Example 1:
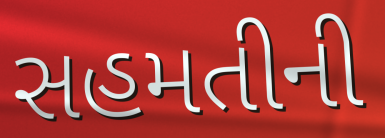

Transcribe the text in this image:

સહમતીની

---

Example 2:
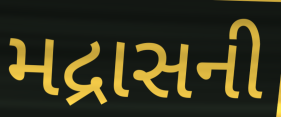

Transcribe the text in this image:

મદ્રાસની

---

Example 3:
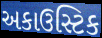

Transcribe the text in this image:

અકાઉસ્ટિક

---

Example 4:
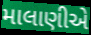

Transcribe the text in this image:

માલાણીએ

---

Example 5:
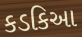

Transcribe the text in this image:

કડકિઆ